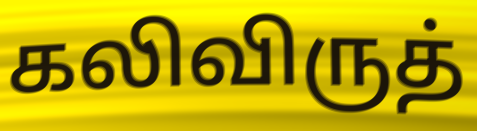
கலிவிருத்